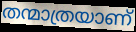
തന്മാത്രയാണ്